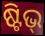
ଷ୍ଟିଭ୍